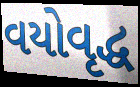
વયોવૃદ્ધ